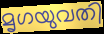
മൃഗയുവതി